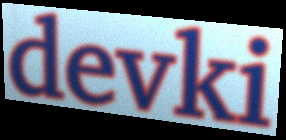
devki